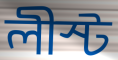
লীস্ট